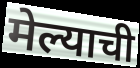
मेल्याची